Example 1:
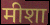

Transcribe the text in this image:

मीशा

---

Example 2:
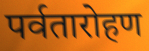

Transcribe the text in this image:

पर्वतारोहण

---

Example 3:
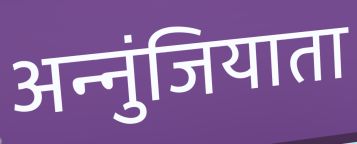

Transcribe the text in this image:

अन्नुंजियाता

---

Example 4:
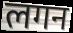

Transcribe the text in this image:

लगन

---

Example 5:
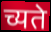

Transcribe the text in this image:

च्यते